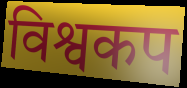
विश्वकप